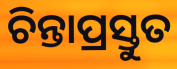
ଚିନ୍ତାପ୍ରସ୍ତୁତ